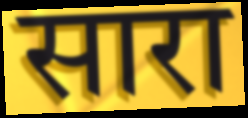
सारा